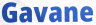
Gavane